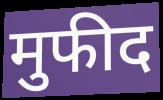
मुफीद